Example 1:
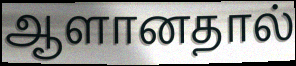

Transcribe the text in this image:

ஆளானதால்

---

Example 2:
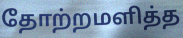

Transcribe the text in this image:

தோற்றமளித்த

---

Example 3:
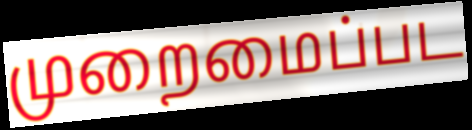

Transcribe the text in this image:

முறைமைப்பட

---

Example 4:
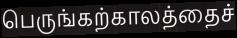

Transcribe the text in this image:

பெருங்கற்காலத்தைச்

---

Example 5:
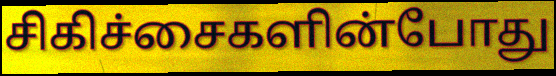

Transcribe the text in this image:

சிகிச்சைகளின்போது